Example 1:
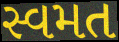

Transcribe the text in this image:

સ્વમત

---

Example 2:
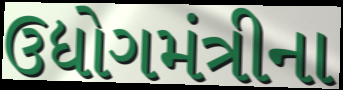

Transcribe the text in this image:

ઉદ્યોગમંત્રીના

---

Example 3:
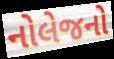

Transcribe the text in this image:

નોલેજનો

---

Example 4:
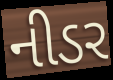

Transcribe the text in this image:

નીડર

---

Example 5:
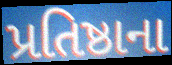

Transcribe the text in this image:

પ્રતિષ્ઠાના